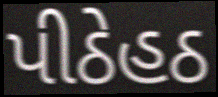
પીઠેહઠ